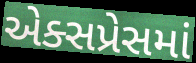
એક્સપ્રેસમાં